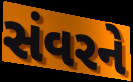
સંવરને